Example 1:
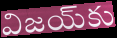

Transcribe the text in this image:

విజయ్‌కు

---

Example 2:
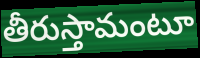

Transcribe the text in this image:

తీరుస్తామంటూ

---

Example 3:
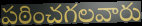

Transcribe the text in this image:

పఠించగలవారు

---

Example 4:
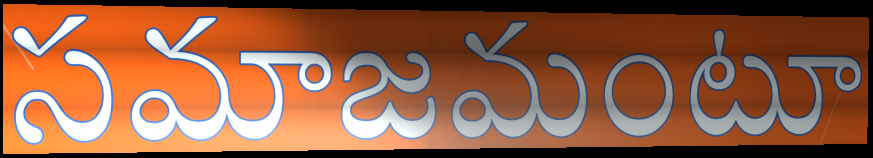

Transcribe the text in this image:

సమాజమంటూ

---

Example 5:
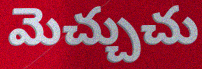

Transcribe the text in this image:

మెచ్చుచు